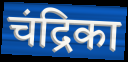
चंद्रिका